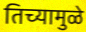
तिच्यामुळे